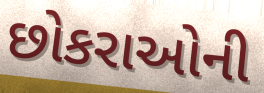
છોકરાઓની